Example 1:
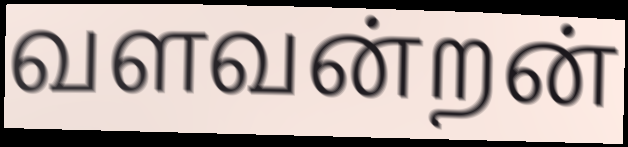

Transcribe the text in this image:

வளவன்றன்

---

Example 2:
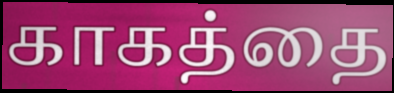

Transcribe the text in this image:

காகத்தை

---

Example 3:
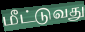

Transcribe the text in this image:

மீட்டுவது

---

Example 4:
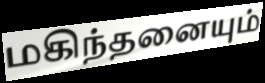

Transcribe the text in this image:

மகிந்தனையும்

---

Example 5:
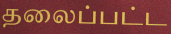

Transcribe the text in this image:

தலைப்பட்ட